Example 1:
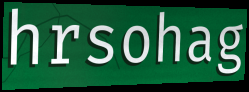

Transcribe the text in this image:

hrsohag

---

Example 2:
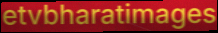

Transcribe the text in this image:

etvbharatimages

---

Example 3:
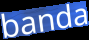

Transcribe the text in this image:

banda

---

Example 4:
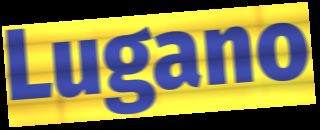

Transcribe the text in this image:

Lugano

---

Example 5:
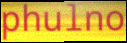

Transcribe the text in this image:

phulno